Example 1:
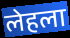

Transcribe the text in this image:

लेहला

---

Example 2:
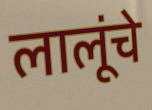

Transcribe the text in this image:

लालूंचे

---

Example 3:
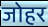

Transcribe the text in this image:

जोहर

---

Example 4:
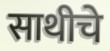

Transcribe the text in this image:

साथीचे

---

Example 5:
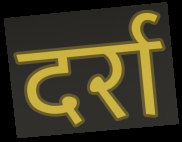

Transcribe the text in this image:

दर्रा